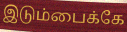
இடும்பைக்கே